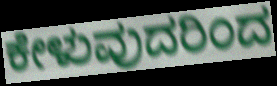
ಕೇಳುವುದರಿಂದ